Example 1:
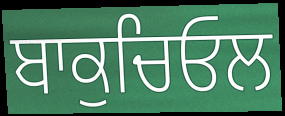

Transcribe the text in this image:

ਬਾਕੁਚਿਓਲ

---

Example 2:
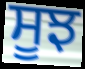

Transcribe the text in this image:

ਸੂਝ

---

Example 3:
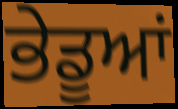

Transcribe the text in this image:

ਭੇਡੂਆਂ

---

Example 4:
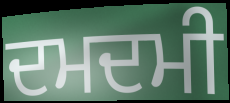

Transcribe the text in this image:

ਦਮਦਮੀ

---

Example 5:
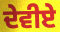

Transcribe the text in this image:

ਦੇਵੀਏ